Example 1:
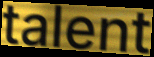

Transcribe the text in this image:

talent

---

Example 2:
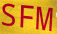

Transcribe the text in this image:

SFM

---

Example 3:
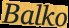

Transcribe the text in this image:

Balko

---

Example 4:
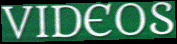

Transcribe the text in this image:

VIDEOS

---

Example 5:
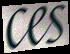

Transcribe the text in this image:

ces